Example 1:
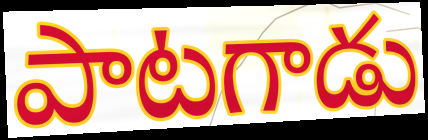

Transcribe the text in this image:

పాటగాడు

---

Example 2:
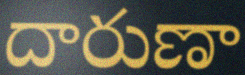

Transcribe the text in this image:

దారుణా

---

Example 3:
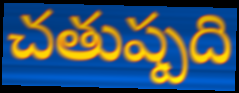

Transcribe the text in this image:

చతుష్పది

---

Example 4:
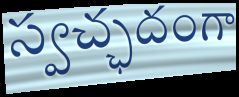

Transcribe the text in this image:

స్వచ్ఛదంగా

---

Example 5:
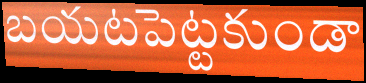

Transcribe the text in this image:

బయటపెట్టకుండా